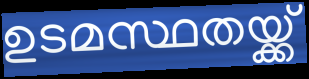
ഉടമസ്ഥതയ്ക്ക്